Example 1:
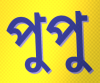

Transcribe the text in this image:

পুপু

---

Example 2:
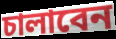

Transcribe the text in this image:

চালাবেন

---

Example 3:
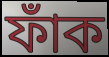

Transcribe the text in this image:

ফাঁক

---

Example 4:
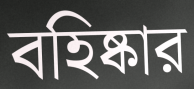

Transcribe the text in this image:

বহিষ্কার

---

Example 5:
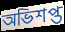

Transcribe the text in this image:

অভিশপ্ত